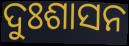
ଦୁଃଶାସନ